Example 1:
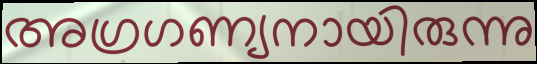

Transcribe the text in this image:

അഗ്രഗണ്യനായിരുന്നു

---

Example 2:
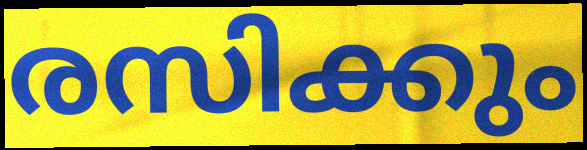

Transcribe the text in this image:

രസിക്കും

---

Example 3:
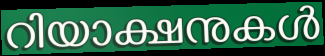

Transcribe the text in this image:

റിയാക്ഷനുകൾ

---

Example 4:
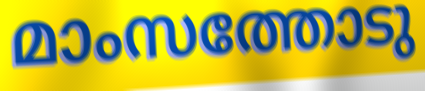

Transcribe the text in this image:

മാംസത്തോടു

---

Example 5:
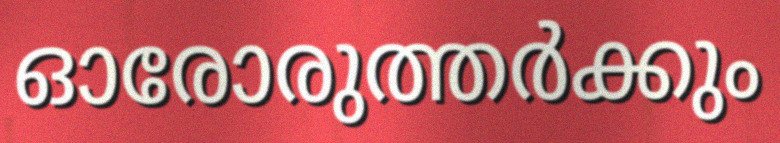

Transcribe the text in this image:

ഓരോരുത്തർക്കും